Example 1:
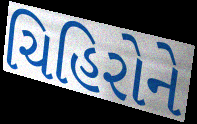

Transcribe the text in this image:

ચિહિરોને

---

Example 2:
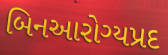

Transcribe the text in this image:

બિનઆરોગ્યપ્રદ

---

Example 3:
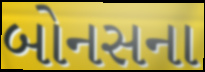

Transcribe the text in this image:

બોનસના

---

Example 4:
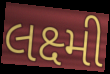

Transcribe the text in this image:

લક્ષ્મી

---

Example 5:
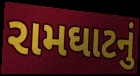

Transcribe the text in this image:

રામઘાટનું